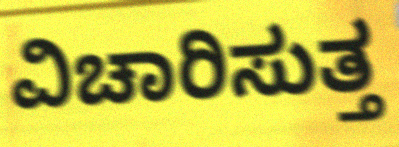
ವಿಚಾರಿಸುತ್ತ